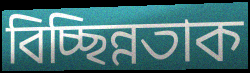
বিচ্ছিন্নতাক